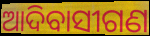
ଆଦିବାସୀଗଣ